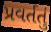
પ્રવર્તતું